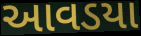
આવડયા